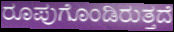
ರೂಪುಗೊಂಡಿರುತ್ತದೆ